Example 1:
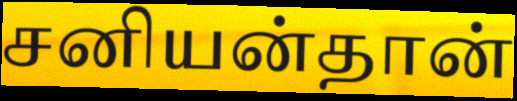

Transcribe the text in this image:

சனியன்தான்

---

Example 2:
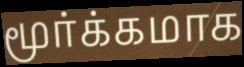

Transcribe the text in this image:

மூர்க்கமாக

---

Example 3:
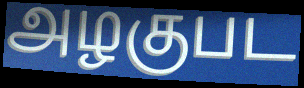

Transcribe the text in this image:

அழகுபட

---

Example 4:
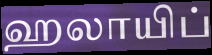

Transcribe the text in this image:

ஹலாயிப்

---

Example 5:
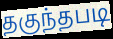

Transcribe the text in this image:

தகுந்தபடி